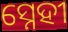
ସ୍ନେହୀ